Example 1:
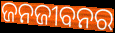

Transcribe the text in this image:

ଜନଜୀବନର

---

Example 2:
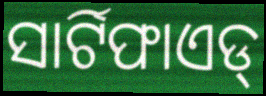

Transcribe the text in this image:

ସାର୍ଟିଫାଏଡ୍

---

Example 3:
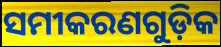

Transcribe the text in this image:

ସମୀକରଣଗୁଡ଼ିକ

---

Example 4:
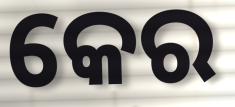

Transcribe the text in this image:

କେର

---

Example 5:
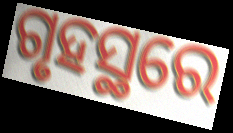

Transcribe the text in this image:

ଗୃହସ୍ଥରେ